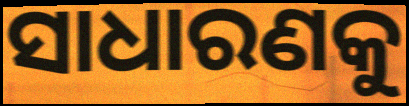
ସାଧାରଣକୁ